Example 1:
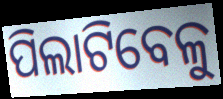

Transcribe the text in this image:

ପିଲାଟିବେଳୁ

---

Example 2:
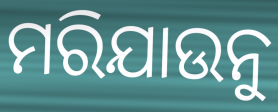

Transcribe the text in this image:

ମରିଯାଉନୁ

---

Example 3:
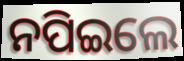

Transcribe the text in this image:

ନପିଇଲେ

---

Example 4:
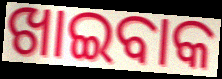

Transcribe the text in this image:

ଖାଇବାକ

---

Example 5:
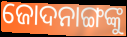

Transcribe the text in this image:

ଜୋଦନାଙ୍ଗଙ୍କୁ